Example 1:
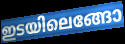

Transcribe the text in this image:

ഇടയിലെങ്ങോ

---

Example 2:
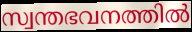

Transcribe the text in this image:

സ്വന്തഭവനത്തിൽ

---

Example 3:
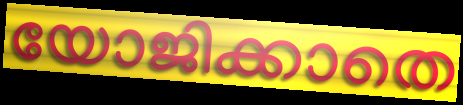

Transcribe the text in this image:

യോജിക്കാതെ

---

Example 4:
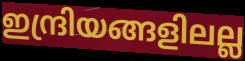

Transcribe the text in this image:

ഇന്ദ്രിയങ്ങളിലല്ല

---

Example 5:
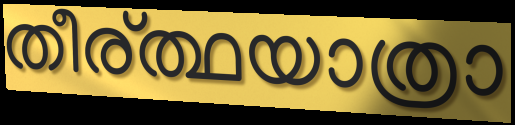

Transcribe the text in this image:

തീര്ത്ഥയാത്രാ